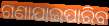
ଗଣାଯାଇପାରିବ